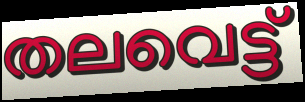
തലവെട്ട്